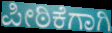
ಪೀಠಿಕೆಗಾಗಿ